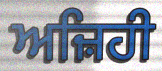
ਅਜ਼ਿਹੀ